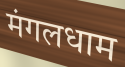
मंगलधाम